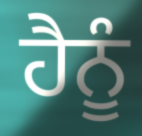
ਹੈਨੂੰ